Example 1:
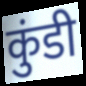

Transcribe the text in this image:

कुंडी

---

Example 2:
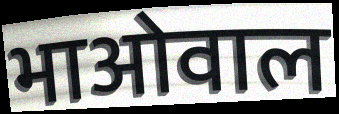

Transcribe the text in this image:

भाओवाल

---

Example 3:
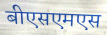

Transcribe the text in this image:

बीएसएमएस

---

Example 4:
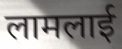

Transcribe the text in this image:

लामलाई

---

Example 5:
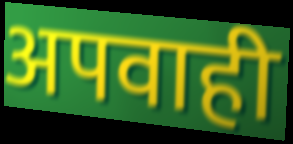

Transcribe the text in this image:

अपवाही